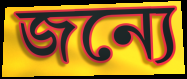
জন্যে